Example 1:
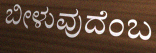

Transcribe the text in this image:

ಬೀಳುವುದೆಂಬ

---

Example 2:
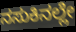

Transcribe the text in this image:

ನಸುಕಿನಲ್ಲೇ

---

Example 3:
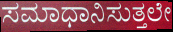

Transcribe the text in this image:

ಸಮಾಧಾನಿಸುತ್ತಲೇ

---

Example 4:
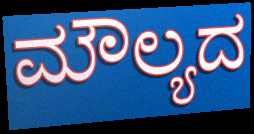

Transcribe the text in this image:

ಮೌಲ್ಯದ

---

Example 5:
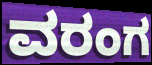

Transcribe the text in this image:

ವರಂಗ